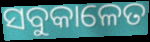
ସବୁକାଳେତ